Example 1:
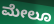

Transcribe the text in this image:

ಮೇಲೂ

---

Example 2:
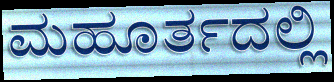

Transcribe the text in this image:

ಮಹೂರ್ತದಲ್ಲಿ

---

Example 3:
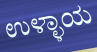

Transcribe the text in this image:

ಉಳ್ಳಾಯ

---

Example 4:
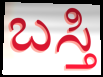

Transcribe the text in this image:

ಬಸ್ತಿ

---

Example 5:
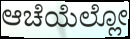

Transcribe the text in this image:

ಆಚೆಯೆಲ್ಲೋ